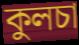
কুলচা